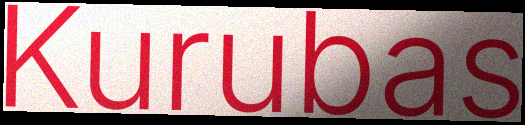
Kurubas